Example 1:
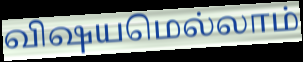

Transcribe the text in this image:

விஷயமெல்லாம்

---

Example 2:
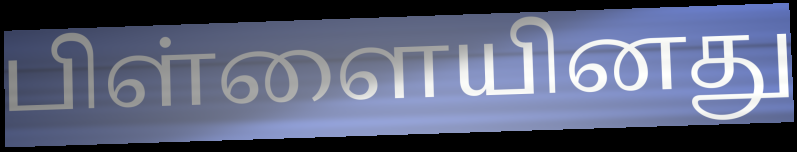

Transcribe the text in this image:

பிள்ளையினது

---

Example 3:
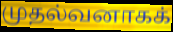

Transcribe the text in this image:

முதல்வனாகக்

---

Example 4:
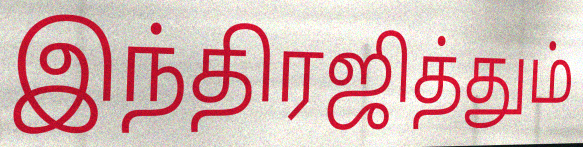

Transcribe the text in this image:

இந்திரஜித்தும்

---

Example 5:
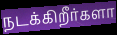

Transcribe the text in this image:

நடக்கிறீர்களா